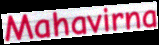
Mahavirna